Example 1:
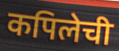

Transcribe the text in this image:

कपिलेची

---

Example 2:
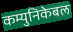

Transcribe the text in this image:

कम्युनिकेबल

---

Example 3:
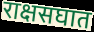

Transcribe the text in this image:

राक्षसघात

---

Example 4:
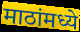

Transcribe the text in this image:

माठांमध्ये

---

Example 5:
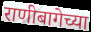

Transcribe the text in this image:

राणीबागेच्या